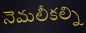
నెమలీకల్ని